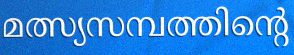
മത്സ്യസമ്പത്തിന്റെ